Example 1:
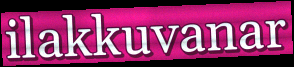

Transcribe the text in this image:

ilakkuvanar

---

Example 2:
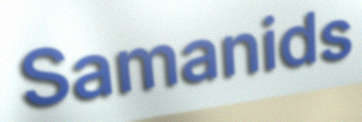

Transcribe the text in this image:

Samanids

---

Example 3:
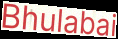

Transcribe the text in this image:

Bhulabai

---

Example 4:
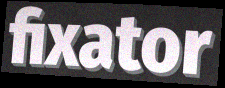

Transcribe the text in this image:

fixator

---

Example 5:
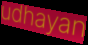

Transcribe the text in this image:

udhayan